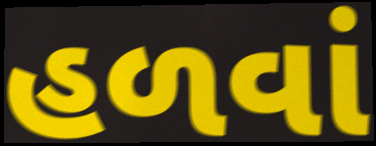
હળવાં